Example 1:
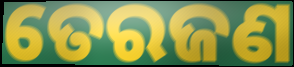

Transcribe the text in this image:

ତେରଜଣ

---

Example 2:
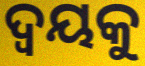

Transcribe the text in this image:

ଦ୍ଵୟକୁ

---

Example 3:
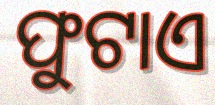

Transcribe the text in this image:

ଫୁଟାଏ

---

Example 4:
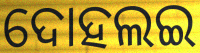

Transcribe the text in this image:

ଦୋହଲଇ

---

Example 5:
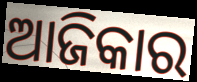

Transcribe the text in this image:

ଆଜିକାର